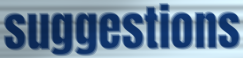
suggestions